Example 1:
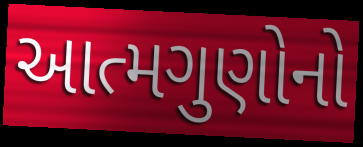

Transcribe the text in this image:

આત્મગુણોનો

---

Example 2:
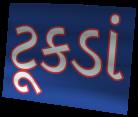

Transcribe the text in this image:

ટૂકડાં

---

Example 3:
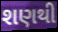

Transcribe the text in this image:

શણથી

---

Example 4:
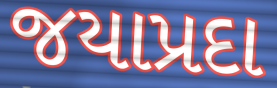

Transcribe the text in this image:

જયાપ્રદા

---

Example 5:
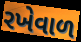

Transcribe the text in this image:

રખેવાળ